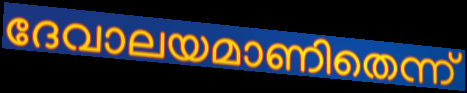
ദേവാലയമാണിതെന്ന്